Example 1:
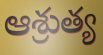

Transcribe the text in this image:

ఆశ్రుత్య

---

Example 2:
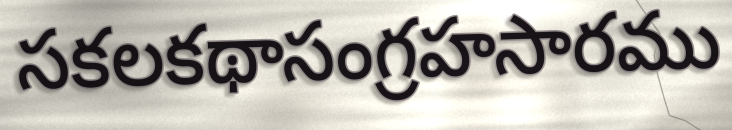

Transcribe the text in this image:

సకలకథాసంగ్రహసారము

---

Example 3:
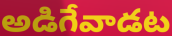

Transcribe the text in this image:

అడిగేవాడట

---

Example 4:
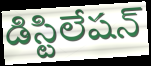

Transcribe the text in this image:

డిస్టిలేషన్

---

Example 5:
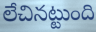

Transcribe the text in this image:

లేచినట్టుంది